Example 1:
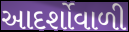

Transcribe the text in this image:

આદર્શોવાળી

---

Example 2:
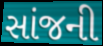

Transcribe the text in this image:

સાંજની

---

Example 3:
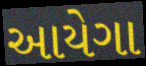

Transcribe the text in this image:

આયેગા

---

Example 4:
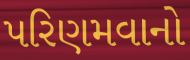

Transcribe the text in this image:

પરિણમવાનો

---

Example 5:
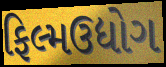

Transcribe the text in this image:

ફિલ્મઉદ્યોગ